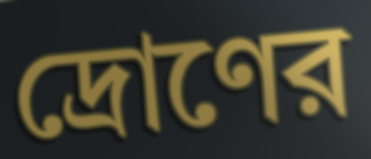
দ্রোণের